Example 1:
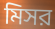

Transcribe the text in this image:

মিসর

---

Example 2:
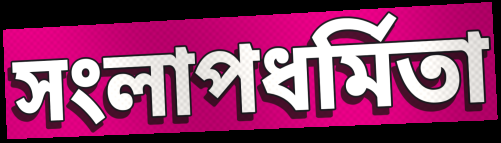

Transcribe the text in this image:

সংলাপধর্মিতা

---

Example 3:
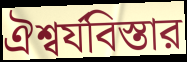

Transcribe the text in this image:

ঐশ্বর্যবিস্তার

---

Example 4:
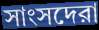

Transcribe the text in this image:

সাংসদেরা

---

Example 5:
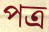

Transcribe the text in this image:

পত্র